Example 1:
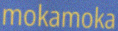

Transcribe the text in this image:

mokamoka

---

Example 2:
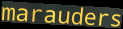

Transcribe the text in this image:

marauders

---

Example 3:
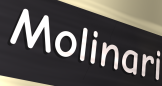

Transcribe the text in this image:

Molinari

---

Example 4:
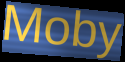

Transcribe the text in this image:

Moby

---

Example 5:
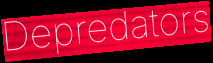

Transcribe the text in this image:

Depredators